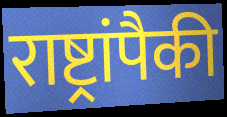
राष्ट्रांपैकी